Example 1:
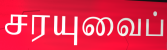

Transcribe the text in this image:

சரயுவைப்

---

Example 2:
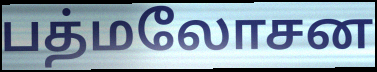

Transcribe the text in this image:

பத்மலோசன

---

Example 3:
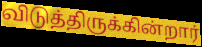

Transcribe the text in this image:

விடுத்திருக்கின்றார்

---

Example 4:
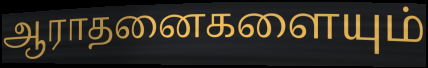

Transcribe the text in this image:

ஆராதனைகளையும்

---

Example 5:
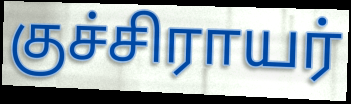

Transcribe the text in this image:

குச்சிராயர்